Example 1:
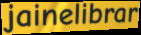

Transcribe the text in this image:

jainelibrar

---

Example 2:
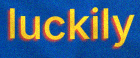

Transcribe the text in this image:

luckily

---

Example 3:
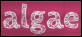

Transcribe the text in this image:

algae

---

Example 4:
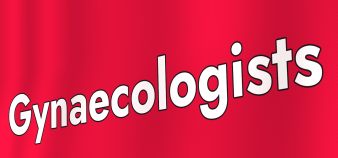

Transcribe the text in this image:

Gynaecologists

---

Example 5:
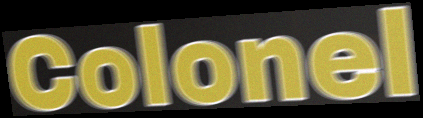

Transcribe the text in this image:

Colonel